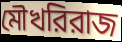
মৌখরিরাজ